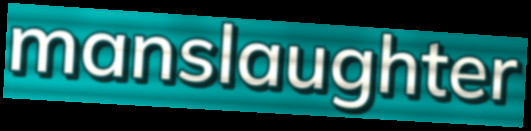
manslaughter